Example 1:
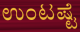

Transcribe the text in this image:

ಉಂಟಷ್ಟೆ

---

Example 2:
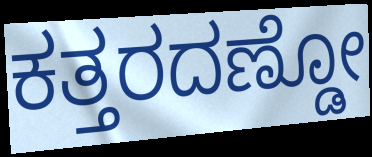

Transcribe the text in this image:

ಕತ್ತರದಣ್ಡೋ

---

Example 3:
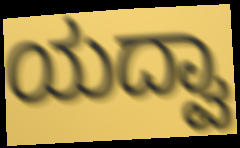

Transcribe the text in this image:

ಯದ್ವಾ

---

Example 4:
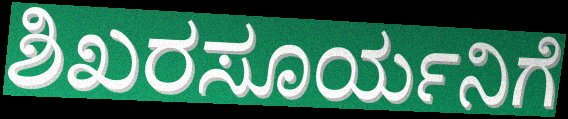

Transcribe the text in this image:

ಶಿಖರಸೂರ್ಯನಿಗೆ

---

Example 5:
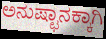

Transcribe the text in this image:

ಅನುಷ್ಟಾನಕ್ಕಾಗಿ